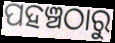
ପହଞ୍ଚଠାରୁ